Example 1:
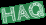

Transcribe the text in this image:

HAQ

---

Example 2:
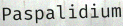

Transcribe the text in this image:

Paspalidium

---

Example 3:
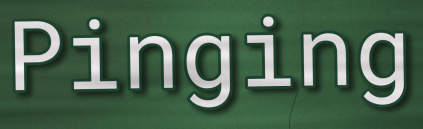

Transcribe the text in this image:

Pinging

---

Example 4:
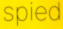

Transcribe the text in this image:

spied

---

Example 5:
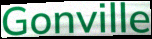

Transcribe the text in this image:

Gonville